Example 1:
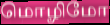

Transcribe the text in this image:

மொழிமோ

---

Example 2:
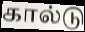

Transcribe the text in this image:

கால்டு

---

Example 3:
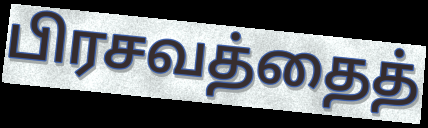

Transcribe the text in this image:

பிரசவத்தைத்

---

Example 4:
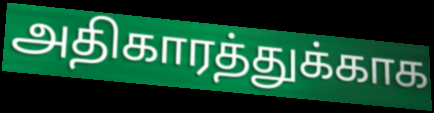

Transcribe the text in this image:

அதிகாரத்துக்காக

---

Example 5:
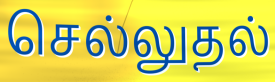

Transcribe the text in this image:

செல்லுதல்